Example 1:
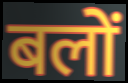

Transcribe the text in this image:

बलों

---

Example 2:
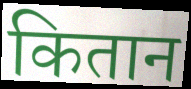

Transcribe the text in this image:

कितान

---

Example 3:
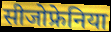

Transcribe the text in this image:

सीजोफ्रेनिया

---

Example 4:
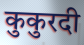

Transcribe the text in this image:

कुकुरदी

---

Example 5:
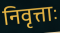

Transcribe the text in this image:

निवृत्ताः